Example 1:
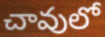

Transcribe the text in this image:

చావులో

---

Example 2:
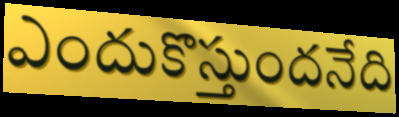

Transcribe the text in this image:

ఎందుకొస్తుందనేది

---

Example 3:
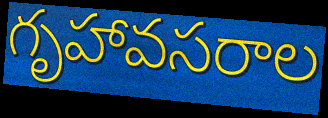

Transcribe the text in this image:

గృహావసరాల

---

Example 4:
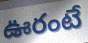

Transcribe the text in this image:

ఊరంటే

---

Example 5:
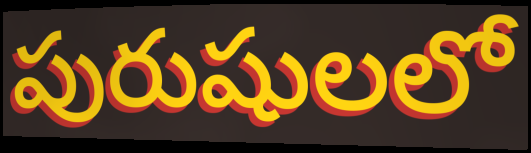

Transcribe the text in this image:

పురుషులలో